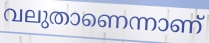
വലുതാണെന്നാണ്